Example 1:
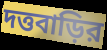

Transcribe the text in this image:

দত্তবাড়ির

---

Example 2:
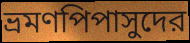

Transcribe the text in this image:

ভ্রমণপিপাসুদের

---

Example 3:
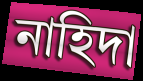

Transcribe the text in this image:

নাহিদা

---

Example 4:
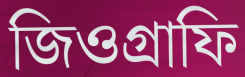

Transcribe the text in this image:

জিওগ্রাফি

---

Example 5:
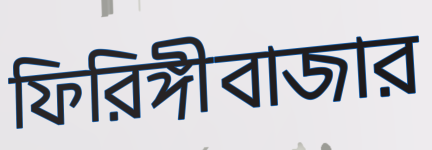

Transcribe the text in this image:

ফিরিঙ্গীবাজার